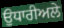
ਉਧਾਰੀਅਲੇ